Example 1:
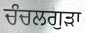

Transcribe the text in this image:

ਚੰਚਲਗੁੜਾ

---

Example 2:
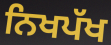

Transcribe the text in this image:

ਨਿਖਪੱਖ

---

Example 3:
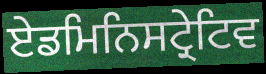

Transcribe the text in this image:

ਏਡਮਿਨਿਸਟ੍ਰੇਟਿਵ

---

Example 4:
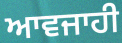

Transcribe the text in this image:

ਆਵਜਾਹੀ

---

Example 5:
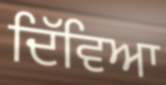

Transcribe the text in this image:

ਦਿੱਵਿਆ